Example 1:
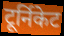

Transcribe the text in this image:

टूर्निकेट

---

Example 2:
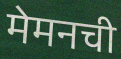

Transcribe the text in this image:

मेमनची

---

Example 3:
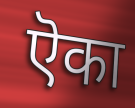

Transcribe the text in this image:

ऎका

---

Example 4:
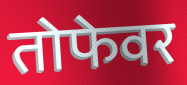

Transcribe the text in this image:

तोफेवर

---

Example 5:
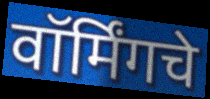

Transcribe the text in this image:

वॉर्मिंगचे